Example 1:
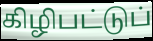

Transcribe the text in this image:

கிழிபட்டுப்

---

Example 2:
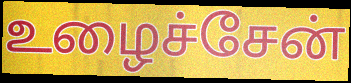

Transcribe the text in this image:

உழைச்சேன்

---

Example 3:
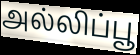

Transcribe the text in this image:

அல்லிப்பூ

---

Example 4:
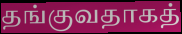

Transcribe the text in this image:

தங்குவதாகத்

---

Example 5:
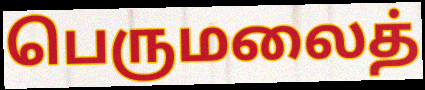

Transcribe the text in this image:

பெருமலைத்